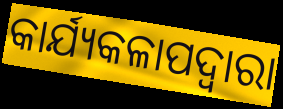
କାର୍ଯ୍ୟକଳାପଦ୍ୱାରା